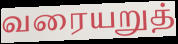
வரையறுத்